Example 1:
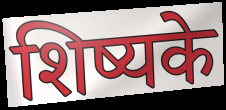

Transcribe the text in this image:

शिष्यके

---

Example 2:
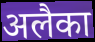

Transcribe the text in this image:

अलैका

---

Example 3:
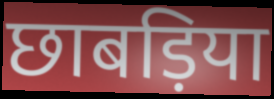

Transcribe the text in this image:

छाबड़िया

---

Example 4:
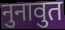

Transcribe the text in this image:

नुनावुत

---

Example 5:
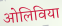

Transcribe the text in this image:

ओलिविया